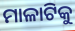
ମାଳାଟିକୁ